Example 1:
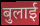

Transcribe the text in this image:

बुलाई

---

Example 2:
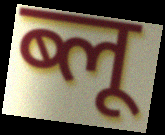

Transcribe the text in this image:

ब्लू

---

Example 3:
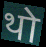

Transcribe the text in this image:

थो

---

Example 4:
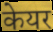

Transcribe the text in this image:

केयर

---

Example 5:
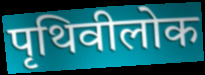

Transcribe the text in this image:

पृथिवीलोक